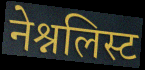
नेश्नलिस्ट